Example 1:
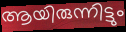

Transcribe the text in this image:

ആയിരുന്നിട്ടും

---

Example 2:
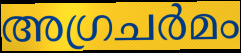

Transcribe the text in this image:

അഗ്രചർമം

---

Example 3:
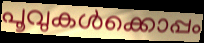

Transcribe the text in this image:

പൂവുകൾക്കൊപ്പം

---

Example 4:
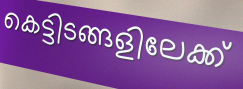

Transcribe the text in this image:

കെട്ടിടങ്ങളിലേക്ക്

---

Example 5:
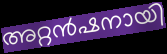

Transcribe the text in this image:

അറ്റൻഷനായി